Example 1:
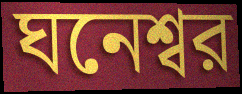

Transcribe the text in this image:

ঘনেশ্বর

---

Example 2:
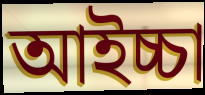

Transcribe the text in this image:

আইচ্চা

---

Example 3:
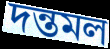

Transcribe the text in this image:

দন্তমল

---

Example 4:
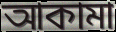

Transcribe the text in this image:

আকামা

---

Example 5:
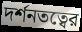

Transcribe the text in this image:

দর্শনতত্বের